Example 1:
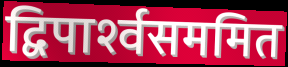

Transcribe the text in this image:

द्विपार्श्वसममित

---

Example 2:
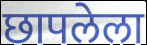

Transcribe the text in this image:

छापलेला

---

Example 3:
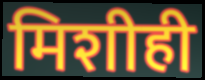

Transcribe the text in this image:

मिशीही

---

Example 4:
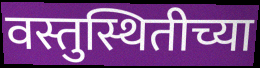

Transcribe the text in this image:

वस्तुस्थितीच्या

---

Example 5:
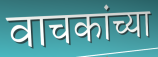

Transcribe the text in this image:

वाचकांच्या